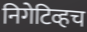
निगेटिव्हच